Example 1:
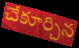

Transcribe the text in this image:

చేకూర్చిన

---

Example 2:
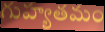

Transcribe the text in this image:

గుహ్యతమం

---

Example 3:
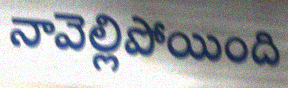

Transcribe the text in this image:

నావెల్లిపోయింది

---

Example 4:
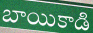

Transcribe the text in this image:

బాయికాడి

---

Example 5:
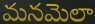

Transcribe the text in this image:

మనమెలా